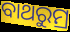
ବାଥରୁମ୍ର